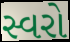
સ્વરો